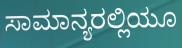
ಸಾಮಾನ್ಯರಲ್ಲಿಯೂ